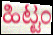
ಹಿಟ್ಟಂ